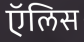
ऍलिस